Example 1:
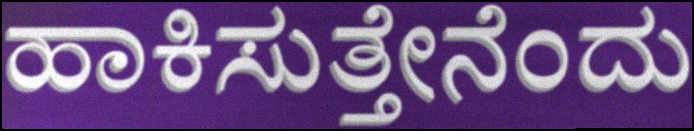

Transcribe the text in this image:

ಹಾಕಿಸುತ್ತೇನೆಂದು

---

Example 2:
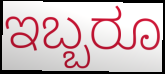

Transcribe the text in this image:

ಇಬ್ಬರೂ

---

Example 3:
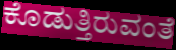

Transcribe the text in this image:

ಕೊಡುತ್ತಿರುವಂತೆ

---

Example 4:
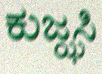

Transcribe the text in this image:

ಕುಜ್ಝಸಿ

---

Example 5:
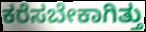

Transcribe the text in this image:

ಕರೆಸಬೇಕಾಗಿತ್ತು